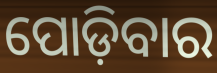
ପୋଡ଼ିବାର